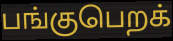
பங்குபெறக்